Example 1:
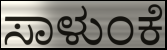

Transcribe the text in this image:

ಸಾಳುಂಕೆ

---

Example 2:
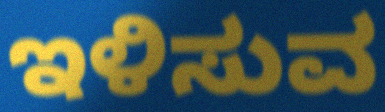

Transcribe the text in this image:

ಇಳಿಸುವ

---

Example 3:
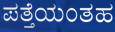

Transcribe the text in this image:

ಪತ್ತೆಯಂತಹ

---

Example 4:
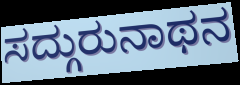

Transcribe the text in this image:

ಸದ್ಗುರುನಾಥನ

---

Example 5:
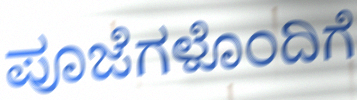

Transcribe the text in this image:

ಪೂಜೆಗಳೊಂದಿಗೆ